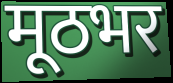
मूठभर